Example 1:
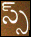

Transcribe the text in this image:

స్స్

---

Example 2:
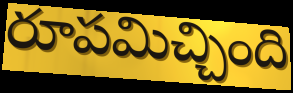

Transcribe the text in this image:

రూపమిచ్చింది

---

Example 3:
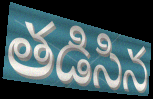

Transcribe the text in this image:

తడిసిన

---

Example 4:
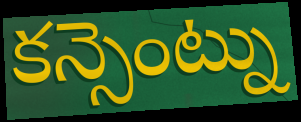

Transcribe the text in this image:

కన్సెంట్ను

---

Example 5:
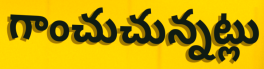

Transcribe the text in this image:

గాంచుచున్నట్లు